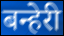
बन्हेरी